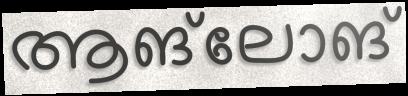
ആങ്‌ലോങ്